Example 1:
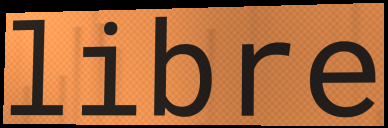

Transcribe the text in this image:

libre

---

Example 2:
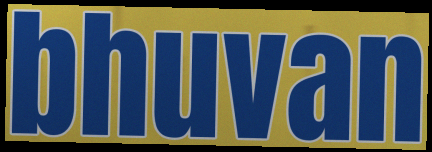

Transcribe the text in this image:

bhuvan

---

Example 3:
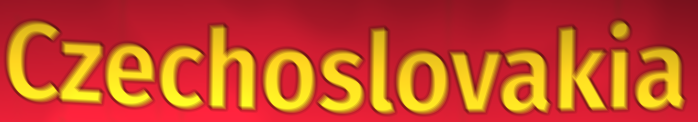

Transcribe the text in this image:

Czechoslovakia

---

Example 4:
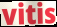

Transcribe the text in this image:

vitis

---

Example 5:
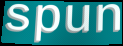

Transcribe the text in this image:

spun